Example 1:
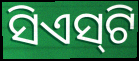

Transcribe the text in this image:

ସିଏସ୍‌ଟି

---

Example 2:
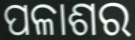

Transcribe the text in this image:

ପଳାଶର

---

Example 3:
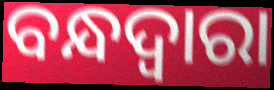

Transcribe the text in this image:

ବନ୍ଧଦ୍ବାରା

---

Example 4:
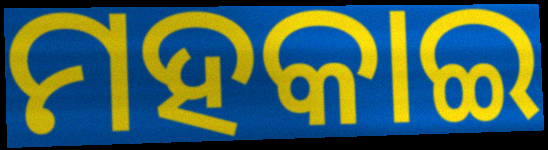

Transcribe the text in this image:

ମହକାଇ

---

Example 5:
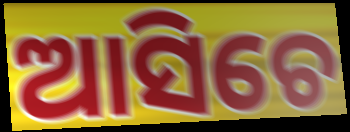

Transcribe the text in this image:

ଆସିଚେ